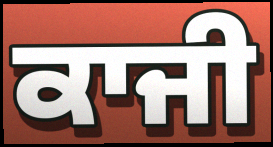
ਕਾਜੀ